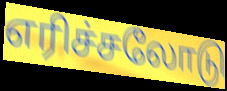
எரிச்சலோடு